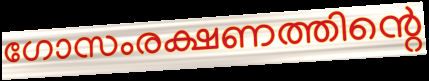
ഗോസംരക്ഷണത്തിന്റെ